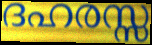
ദഹരസ്സ